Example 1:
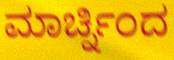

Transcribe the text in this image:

ಮಾರ್ಚ್ನಿಂದ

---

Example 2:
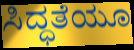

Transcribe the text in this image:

ಸಿದ್ಧತೆಯೂ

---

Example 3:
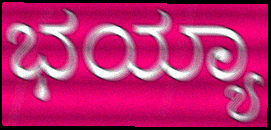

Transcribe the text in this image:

ಭಯ್ಯಾ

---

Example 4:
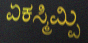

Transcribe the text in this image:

ಏಕಸ್ಮಿಮ್ಪಿ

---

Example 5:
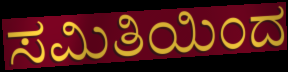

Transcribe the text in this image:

ಸಮಿತಿಯಿಂದ